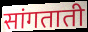
सांगताती